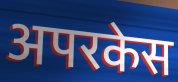
अपरकेस